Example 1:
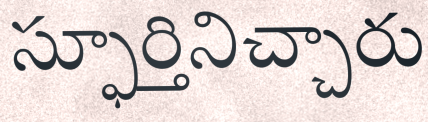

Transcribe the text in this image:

స్ఫూర్తినిచ్చారు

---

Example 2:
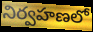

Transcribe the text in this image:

నిర్వహణలో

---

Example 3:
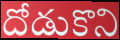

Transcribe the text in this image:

దోడుకొని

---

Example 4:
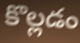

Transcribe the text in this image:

కొల్లడం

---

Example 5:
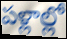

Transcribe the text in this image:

పళ్లాల్లో